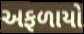
અફળાયો